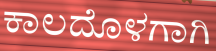
ಕಾಲದೊಳಗಾಗಿ